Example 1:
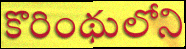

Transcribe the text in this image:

కొరింథులోని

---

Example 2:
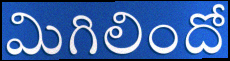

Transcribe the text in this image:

మిగిలిందో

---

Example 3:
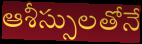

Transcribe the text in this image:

ఆశీస్సులతోనే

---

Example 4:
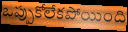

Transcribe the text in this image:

ఒప్పుకోలేకపోయింది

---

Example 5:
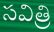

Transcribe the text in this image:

సవిత్రి